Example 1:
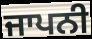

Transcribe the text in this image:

ਜਾਪਨੀ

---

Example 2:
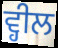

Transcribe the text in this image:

ਵ੍ਹੀਲ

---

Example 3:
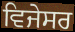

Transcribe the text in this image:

ਵਿਜੇਸਰ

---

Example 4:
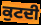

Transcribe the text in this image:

ਕੁਟਦੀ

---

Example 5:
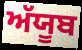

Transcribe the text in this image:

ਅੱਯੂਬ